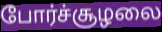
போர்ச்சூழலை